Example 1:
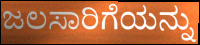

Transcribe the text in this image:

ಜಲಸಾರಿಗೆಯನ್ನು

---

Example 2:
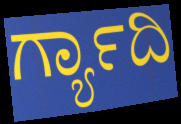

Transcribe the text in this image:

ರ್ಗ್ಯಾದಿ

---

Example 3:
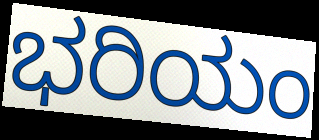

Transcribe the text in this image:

ಭರಿಯಂ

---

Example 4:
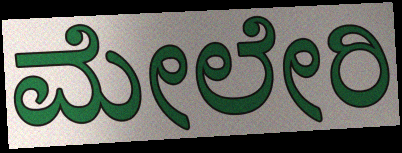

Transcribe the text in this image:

ಮೇಲೇರಿ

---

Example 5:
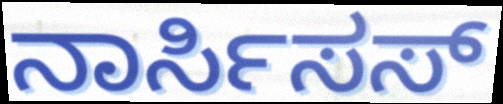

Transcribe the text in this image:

ನಾರ್ಸಿಸಸ್